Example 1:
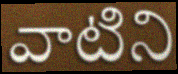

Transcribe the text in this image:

వాటిని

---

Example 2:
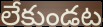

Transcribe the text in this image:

లేకుండట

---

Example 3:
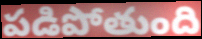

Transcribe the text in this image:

పడిపోతుంది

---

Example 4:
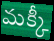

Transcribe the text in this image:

మక్కీ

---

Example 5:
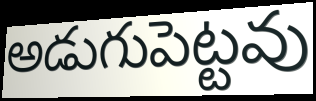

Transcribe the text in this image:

అడుగుపెట్టవు